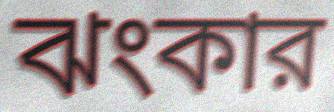
ঝংকার